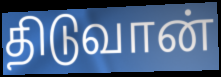
திடுவான்